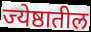
ज्येष्ठातील